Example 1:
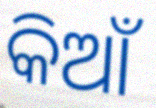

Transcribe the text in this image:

କିଆଁ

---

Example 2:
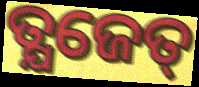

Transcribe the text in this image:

ତ୍ଯଜେତ୍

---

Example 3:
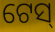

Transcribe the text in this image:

ଟେସ୍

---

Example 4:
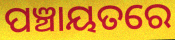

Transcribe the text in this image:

ପଞ୍ଚାୟତରେ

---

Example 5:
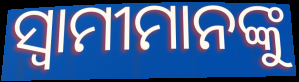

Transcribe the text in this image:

ସ୍ଵାମୀମାନଙ୍କୁ